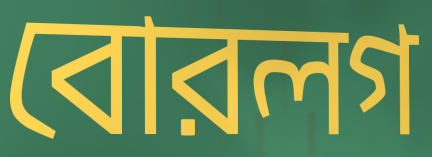
বোরলগ